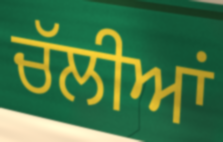
ਚੱਲੀਆਂ